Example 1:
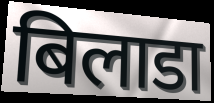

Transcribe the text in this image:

बिलाडा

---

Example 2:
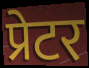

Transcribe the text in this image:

प्रेटर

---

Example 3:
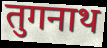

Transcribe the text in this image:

तुगनाथ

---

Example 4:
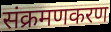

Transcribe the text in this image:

संक्रमणकरण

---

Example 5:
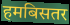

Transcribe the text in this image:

हमबिसतर